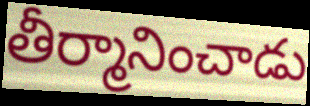
తీర్మానించాడు